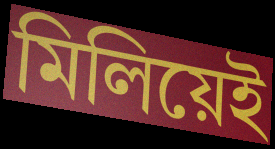
মিলিয়েই